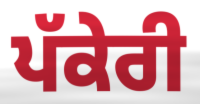
ਪੱਕੇਰੀ